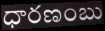
ధారణంబు